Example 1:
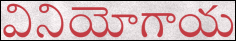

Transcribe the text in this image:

వినియోగాయ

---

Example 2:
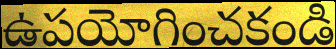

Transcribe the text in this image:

ఉపయోగించకండి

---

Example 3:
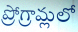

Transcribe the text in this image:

ప్రోగ్రామ్లలో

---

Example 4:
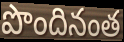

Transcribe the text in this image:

పొందినంత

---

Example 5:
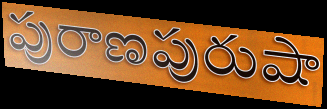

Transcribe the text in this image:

పురాణపురుషా